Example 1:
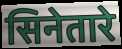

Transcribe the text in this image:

सिनेतारे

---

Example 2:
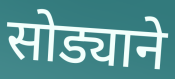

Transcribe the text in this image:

सोड्याने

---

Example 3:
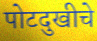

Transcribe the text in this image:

पोटदुखीचे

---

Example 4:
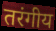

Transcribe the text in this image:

तरंगीय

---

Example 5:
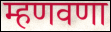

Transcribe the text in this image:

म्हणवणा